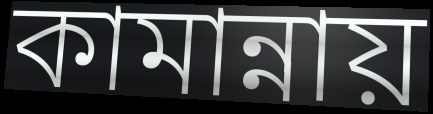
কামান্নায়